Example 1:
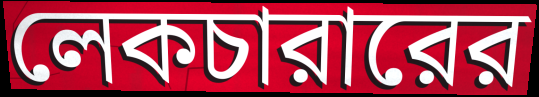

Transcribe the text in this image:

লেকচারারের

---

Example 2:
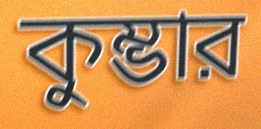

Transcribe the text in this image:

কুম্ভার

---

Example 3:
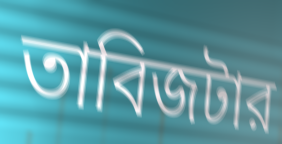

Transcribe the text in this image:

তাবিজটার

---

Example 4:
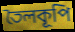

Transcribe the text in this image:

তৈলকূপি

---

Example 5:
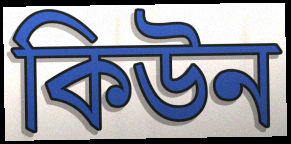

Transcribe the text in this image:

কিউন